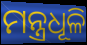
ମନ୍ତ୍ରଧୂଳି